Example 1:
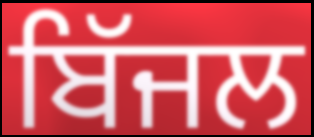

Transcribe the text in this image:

ਬਿੱਜਲ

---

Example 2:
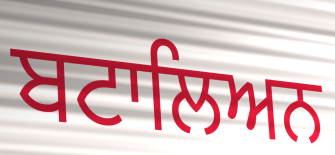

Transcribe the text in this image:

ਬਟਾਲਿਅਨ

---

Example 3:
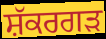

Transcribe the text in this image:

ਸ਼ੱਕਰਗੜ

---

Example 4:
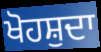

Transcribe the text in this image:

ਖੋਹਸ਼ੁਦਾ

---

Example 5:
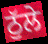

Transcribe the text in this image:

ਠੁੱਲੇ